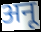
अनू